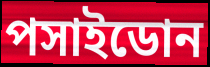
পসাইডোন